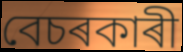
বেচৰকাৰী